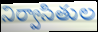
నిర్వాసితుల